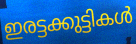
ഇരട്ടക്കുട്ടികൾ